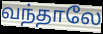
வந்தாலே